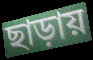
ছাড়ায়